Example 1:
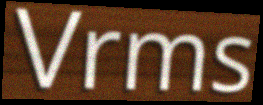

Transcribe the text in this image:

Vrms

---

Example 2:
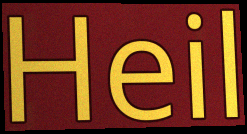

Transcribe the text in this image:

Heil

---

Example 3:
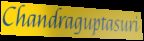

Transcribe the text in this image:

Chandraguptasuri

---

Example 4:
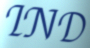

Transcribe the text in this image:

IND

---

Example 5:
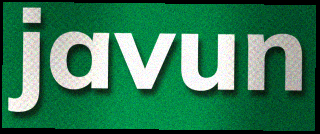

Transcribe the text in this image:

javun